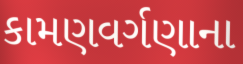
કામણવર્ગણાના